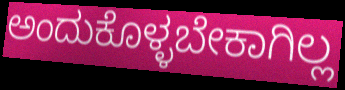
ಅಂದುಕೊಳ್ಳಬೇಕಾಗಿಲ್ಲ